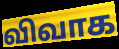
விவாக